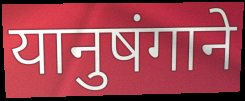
यानुषंगाने